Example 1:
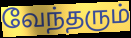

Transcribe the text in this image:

வேந்தரும்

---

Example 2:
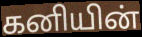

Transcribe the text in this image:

கனியின்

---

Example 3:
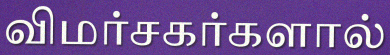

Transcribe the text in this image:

விமர்சகர்களால்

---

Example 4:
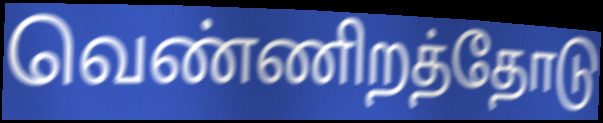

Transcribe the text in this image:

வெண்ணிறத்தோடு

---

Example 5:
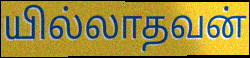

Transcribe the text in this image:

யில்லாதவன்